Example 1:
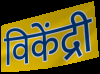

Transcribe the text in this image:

विकेंद्री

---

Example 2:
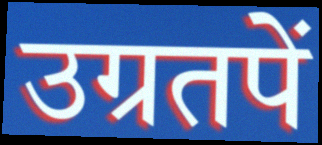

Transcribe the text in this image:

उग्रतपें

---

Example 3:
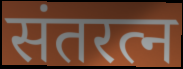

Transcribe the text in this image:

संतरत्न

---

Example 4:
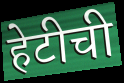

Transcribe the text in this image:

हेटीची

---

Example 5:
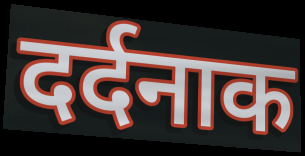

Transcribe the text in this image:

दर्दनाक